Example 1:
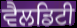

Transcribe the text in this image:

ਵੈਲਡਿਟੀ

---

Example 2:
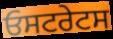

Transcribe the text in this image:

ਓਸਟਰੇਟਸ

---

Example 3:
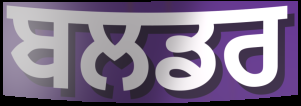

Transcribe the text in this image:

ਬਲਡਰ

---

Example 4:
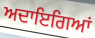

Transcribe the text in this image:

ਅਦਾਇਗਿਆਂ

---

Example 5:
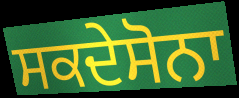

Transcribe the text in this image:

ਸਕਦੇਸੋਨਾ